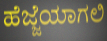
ಹೆಜ್ಜೆಯಾಗಲಿ